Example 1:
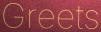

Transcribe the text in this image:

Greets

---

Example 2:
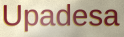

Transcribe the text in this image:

Upadesa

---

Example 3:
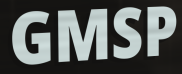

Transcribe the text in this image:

GMSP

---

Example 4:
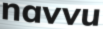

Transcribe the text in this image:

navvu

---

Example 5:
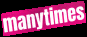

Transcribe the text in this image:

manytimes